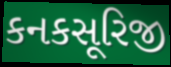
કનકસૂરિજી